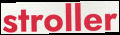
stroller